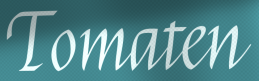
Tomaten